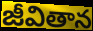
జీవితాన